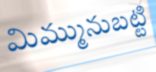
మిమ్మునుబట్టి